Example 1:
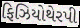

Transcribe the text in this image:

ફિઝિયોથેરપી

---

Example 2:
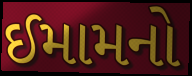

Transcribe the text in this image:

ઈમામનો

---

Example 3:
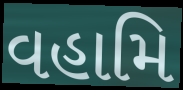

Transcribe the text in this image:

વહામિ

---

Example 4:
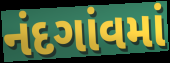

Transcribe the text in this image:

નંદગાંવમાં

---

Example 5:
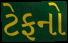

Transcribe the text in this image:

ટેફનો